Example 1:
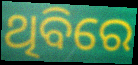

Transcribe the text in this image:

ଥିବିରେ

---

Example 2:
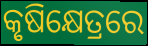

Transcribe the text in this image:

କୃଷିକ୍ଷେତ୍ରରେ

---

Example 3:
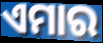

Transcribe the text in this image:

ଏମାର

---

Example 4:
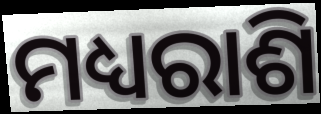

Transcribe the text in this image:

ମଧ୍ୟରାଶି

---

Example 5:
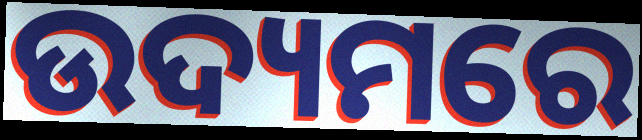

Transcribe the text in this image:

ଉଦ୍ୟମରେ